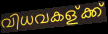
വിധവകള്ക്ക്